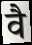
वै